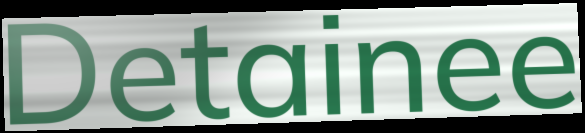
Detainee